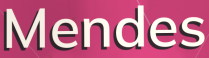
Mendes